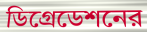
ডিগ্রেডেশনের